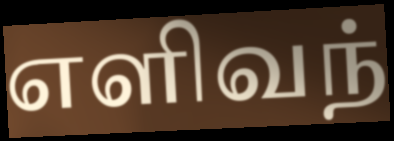
எளிவந்